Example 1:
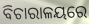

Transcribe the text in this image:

ବିଚାରାଳୟରେ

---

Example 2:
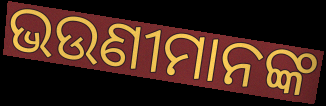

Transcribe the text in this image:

ଭଉଣୀମାନଙ୍କ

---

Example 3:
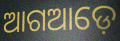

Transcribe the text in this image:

ଆଗଆଡ଼େ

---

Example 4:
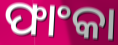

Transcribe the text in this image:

ଫାଂକା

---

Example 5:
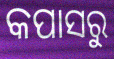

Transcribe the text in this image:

କପାସରୁ